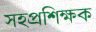
সহপ্রশিক্ষক